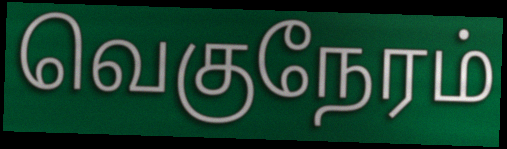
வெகுநேரம்